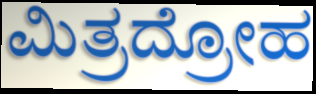
ಮಿತ್ರದ್ರೋಹ